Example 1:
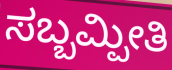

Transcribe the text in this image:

ಸಬ್ಬಮ್ಪೀತಿ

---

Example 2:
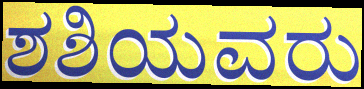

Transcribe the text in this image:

ಶಶಿಯವರು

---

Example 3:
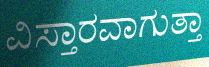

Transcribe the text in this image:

ವಿಸ್ತಾರವಾಗುತ್ತಾ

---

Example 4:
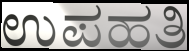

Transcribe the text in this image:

ಉಪಹತಿ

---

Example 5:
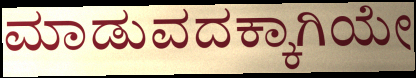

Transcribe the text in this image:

ಮಾಡುವದಕ್ಕಾಗಿಯೇ